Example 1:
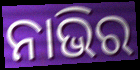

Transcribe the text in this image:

ନାଭିର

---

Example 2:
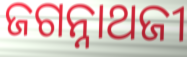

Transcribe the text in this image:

ଜଗନ୍ନାଥଜୀ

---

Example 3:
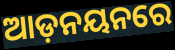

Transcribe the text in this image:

ଆଡ଼ନୟନରେ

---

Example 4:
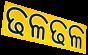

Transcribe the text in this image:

ଢଳଢଳ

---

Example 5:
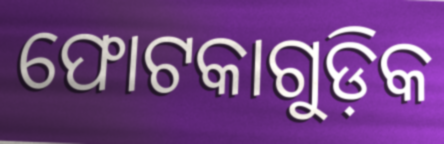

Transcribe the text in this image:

ଫୋଟକାଗୁଡ଼ିକ